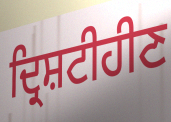
ਦ੍ਰਿਸ਼ਟੀਹੀਣ